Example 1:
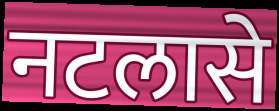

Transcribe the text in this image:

नटलासे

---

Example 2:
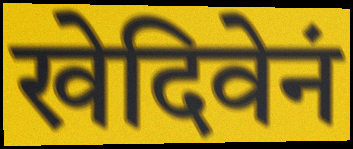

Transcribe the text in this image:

खेदिवेनं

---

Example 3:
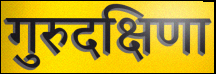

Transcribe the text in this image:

गुरुदक्षिणा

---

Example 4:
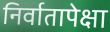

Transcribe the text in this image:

निर्वातापेक्षा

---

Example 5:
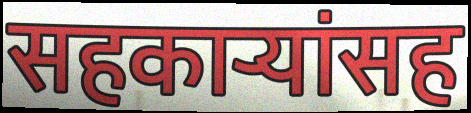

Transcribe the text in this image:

सहकाऱ्यांसह